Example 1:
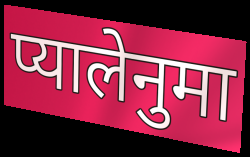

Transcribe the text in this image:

प्यालेनुमा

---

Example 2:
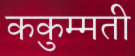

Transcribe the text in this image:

ककुम्मती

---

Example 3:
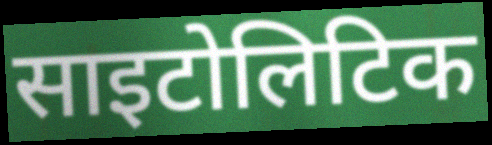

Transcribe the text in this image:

साइटोलिटिक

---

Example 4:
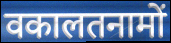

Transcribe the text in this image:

वकालतनामों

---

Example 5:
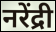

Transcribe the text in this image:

नरेंद्री